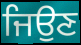
ਜਿਉਣ